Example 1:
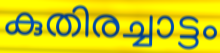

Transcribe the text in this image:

കുതിരച്ചാട്ടം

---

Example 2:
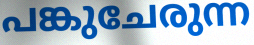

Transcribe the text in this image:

പങ്കുചേരുന്ന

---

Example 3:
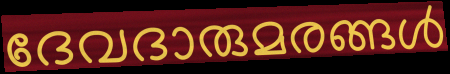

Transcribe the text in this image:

ദേവദാരുമരങ്ങൾ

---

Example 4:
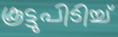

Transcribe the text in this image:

കൂട്ടുപിടിച്ച്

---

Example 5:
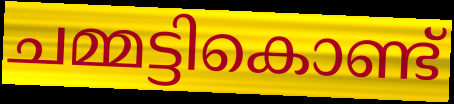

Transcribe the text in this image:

ചമ്മട്ടികൊണ്ട്